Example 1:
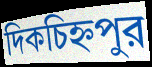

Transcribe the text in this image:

দিকচিহ্নপুর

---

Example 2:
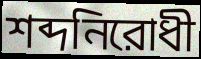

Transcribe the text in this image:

শব্দনিরোধী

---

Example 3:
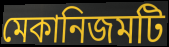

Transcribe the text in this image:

মেকানিজমটি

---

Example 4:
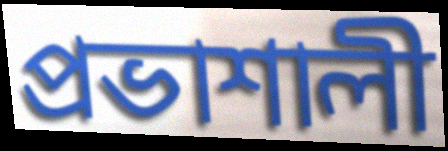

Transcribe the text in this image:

প্রভাশালী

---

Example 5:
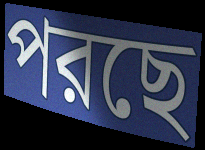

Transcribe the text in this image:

পরছে